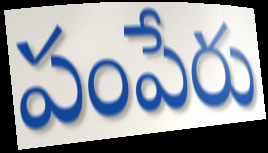
పంపేరు